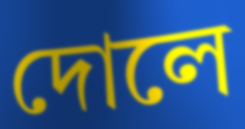
দোলে